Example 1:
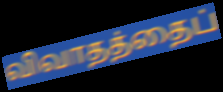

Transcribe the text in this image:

விவாதத்தைப்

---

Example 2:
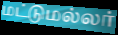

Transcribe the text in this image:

மட்டுமல்லர்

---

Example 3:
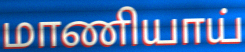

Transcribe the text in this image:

மாணியாய்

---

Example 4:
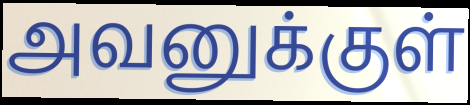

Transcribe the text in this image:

அவனுக்குள்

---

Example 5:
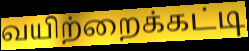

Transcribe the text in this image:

வயிற்றைக்கட்டி